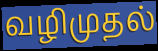
வழிமுதல்